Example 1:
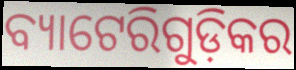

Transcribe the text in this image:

ବ୍ୟାଟେରିଗୁଡ଼ିକର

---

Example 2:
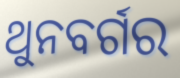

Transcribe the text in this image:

ଥୁନବର୍ଗର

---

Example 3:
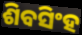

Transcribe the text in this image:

ଶିବସିଂହ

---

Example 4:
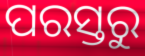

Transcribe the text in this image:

ପରସ୍ତରୁ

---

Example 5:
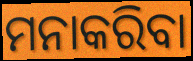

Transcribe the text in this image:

ମନାକରିବା